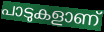
പാടുകളാണ്